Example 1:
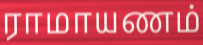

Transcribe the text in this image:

ராமாயணம்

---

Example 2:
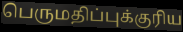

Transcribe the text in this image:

பெருமதிப்புக்குரிய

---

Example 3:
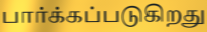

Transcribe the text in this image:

பார்க்கப்படுகிறது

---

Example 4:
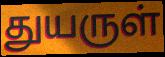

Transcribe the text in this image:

துயருள்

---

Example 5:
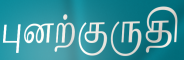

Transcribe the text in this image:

புனற்குருதி